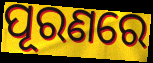
ପୂରଣରେ